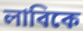
লাবিকে